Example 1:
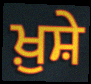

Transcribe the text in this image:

ਖ਼ੁਸ਼ੇ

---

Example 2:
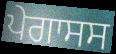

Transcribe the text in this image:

ਪੇਗਾਸਸ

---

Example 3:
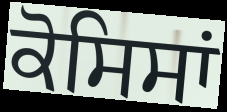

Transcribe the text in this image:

ਕੋਸਿਸਾਂ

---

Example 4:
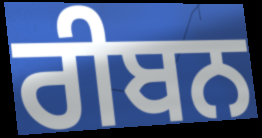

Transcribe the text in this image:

ਰੀਬਨ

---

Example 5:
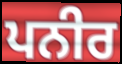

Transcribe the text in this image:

ਪਨੀਰ